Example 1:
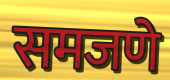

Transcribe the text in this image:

समजणे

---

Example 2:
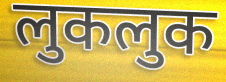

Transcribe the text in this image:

लुकलुक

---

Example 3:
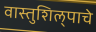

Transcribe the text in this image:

वास्तुशिल्पाचे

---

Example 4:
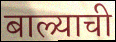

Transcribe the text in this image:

बाल्याची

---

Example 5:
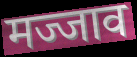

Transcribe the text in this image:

मज्जाव